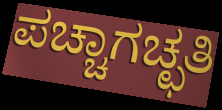
ಪಚ್ಚಾಗಚ್ಛತಿ